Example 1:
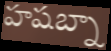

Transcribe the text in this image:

హషబ్నా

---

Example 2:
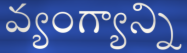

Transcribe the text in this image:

వ్యంగ్యాన్ని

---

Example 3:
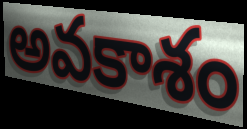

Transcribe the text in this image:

అవకాశం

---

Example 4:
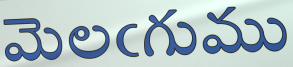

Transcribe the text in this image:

మెలఁగుము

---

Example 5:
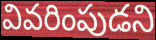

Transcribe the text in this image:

వివరింపుడని